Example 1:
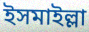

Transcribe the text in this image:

ইসমাইল্লা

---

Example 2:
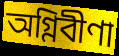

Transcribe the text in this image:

অগ্নিবীণা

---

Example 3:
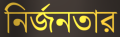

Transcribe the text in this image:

নির্জনতার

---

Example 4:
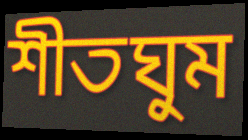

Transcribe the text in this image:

শীতঘুম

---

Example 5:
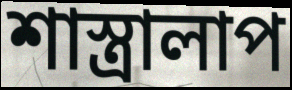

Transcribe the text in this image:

শাস্ত্রালাপ